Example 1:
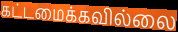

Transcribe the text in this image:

கட்டமைக்கவில்லை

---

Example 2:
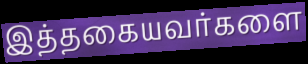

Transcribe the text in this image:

இத்தகையவர்களை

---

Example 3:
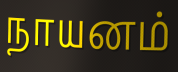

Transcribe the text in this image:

நாயனம்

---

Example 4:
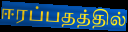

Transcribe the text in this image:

ஈரப்பதத்தில்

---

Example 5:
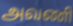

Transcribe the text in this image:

அவணி